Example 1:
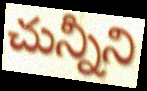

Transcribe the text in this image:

చున్నీని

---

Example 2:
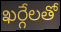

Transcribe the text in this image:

ఖర్గేలతో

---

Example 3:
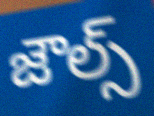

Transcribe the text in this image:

జౌల్స్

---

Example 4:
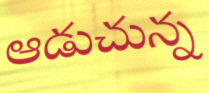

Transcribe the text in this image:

ఆడుచున్న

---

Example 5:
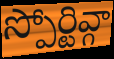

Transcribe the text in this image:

స్పోర్టివ్గా